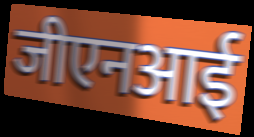
जीएनआई